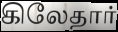
கிலேதார்